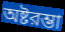
অষ্টরম্ভা